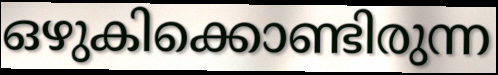
ഒഴുകിക്കൊണ്ടിരുന്ന